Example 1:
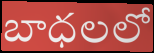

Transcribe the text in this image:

బాధలలో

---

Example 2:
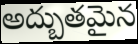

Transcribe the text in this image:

అద్బుతమైన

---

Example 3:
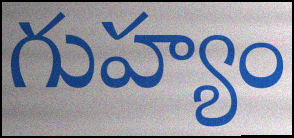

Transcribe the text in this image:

గుహ్యం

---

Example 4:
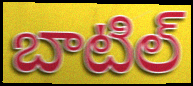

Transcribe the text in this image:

బాటిల్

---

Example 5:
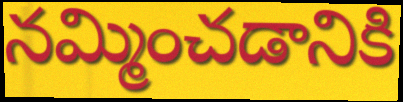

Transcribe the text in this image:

నమ్మించడానికి